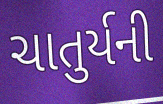
ચાતુર્યની